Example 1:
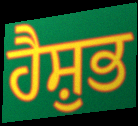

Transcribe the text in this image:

ਹੈਸ਼ੁਭ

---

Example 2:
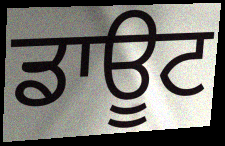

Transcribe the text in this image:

ਡਾਊਟ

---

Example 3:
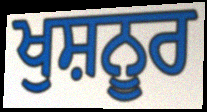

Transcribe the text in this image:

ਖੁਸ਼ਨੂਰ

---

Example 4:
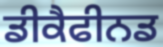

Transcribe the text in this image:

ਡੀਕੈਫੀਨਡ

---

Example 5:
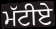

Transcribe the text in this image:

ਮੱਟੀਏ